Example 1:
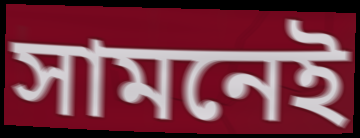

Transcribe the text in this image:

সামনেই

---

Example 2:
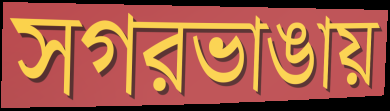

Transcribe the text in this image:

সগরভাঙায়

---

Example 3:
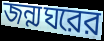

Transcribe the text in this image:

জন্মঘরের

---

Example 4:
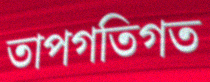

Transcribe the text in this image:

তাপগতিগত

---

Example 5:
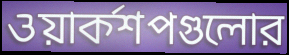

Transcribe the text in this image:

ওয়ার্কশপগুলোর